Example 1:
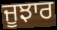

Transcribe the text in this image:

ਜੂਝਾਰ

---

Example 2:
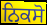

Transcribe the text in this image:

ਨਿਕਸੋ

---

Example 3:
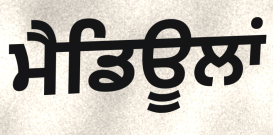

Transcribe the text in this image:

ਮੈਡਿਊਲਾਂ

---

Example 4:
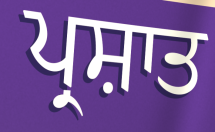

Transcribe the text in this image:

ਪ੍ਰਸ਼ਾਤ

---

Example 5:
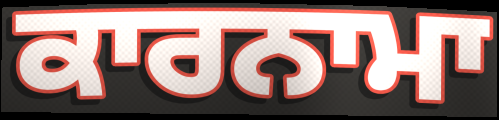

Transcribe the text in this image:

ਕਾਰਨਾਮਾ